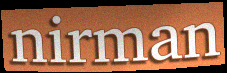
nirman